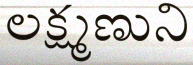
లక్ష్మణుని